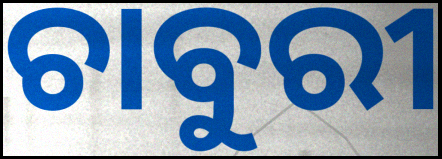
ଚାବୁରୀ